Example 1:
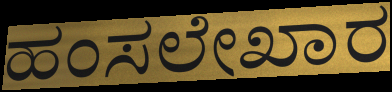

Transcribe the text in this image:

ಹಂಸಲೇಖಾರ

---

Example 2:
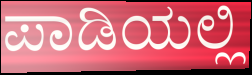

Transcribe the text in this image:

ಪಾಡಿಯಲ್ಲಿ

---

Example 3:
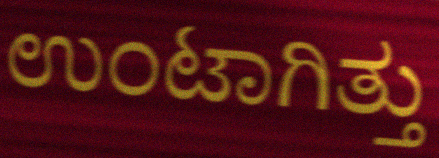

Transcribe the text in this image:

ಉಂಟಾಗಿತ್ತು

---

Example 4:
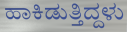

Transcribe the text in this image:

ಹಾಕಿಡುತ್ತಿದ್ದಳು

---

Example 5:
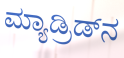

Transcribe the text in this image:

ಮ್ಯಾಡ್ರಿಡ್‌ನ